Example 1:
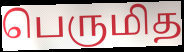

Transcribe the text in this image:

பெருமித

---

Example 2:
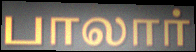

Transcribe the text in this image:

பாலார்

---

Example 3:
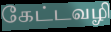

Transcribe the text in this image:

கேட்டவழி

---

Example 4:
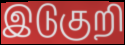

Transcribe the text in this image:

இடுகுறி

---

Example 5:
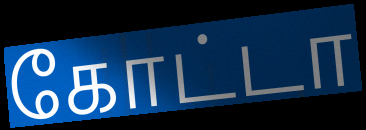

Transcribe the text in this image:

கோட்டா